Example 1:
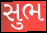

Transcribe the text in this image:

સુભ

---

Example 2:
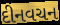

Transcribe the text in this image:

દીનવચન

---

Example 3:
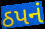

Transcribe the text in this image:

ઠપનં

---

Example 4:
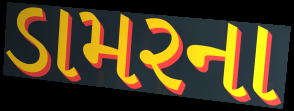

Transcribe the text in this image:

ડામરના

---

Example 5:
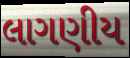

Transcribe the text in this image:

લાગણીય